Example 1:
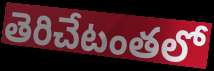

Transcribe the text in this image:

తెరిచేటంతలో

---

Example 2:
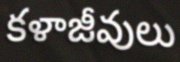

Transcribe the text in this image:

కళాజీవులు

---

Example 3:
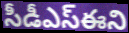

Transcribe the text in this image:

సీడీఎస్ఈని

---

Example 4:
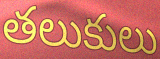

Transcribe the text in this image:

తలుకులు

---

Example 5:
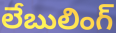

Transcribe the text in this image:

లేబులింగ్